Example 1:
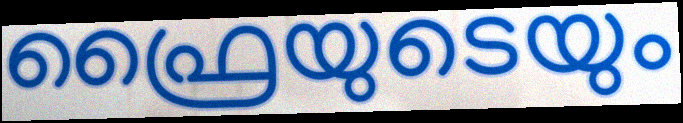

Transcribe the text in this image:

ഫ്രൈയുടെയും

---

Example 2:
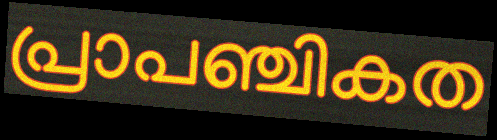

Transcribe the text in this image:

പ്രാപഞ്ചികത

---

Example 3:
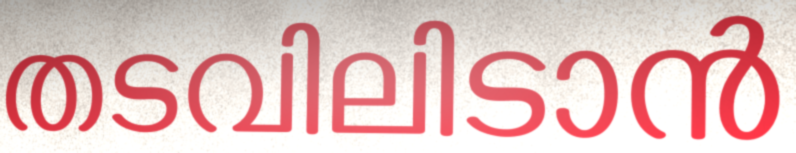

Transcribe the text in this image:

തടവിലിടാൻ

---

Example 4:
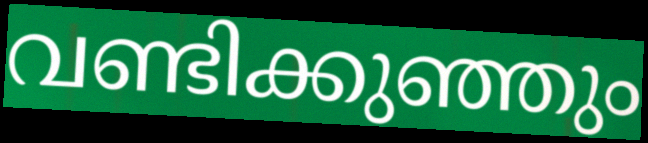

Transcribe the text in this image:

വണ്ടിക്കുഞ്ഞും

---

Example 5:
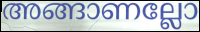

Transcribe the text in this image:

അങ്ങാണല്ലോ